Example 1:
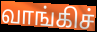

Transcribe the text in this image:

வாங்கிச்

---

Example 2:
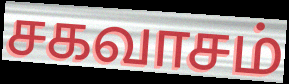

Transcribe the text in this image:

சகவாசம்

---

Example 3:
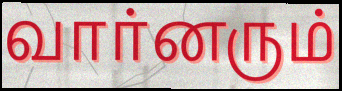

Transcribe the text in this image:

வார்னரும்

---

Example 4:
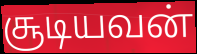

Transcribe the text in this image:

சூடியவன்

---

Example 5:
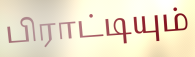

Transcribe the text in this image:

பிராட்டியும்